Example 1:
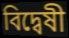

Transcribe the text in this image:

বিদ্বেষী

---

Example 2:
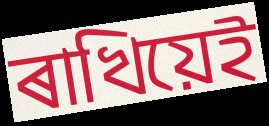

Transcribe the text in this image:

ৰাখিয়েই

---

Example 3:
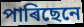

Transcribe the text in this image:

পাৰিছেনে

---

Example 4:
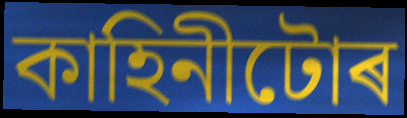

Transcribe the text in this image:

কাহিনীটোৰ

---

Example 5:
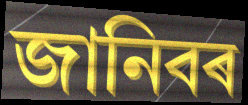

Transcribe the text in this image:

জানিবৰ